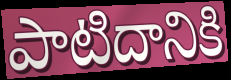
పాటిదానికి